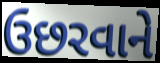
ઉછરવાને